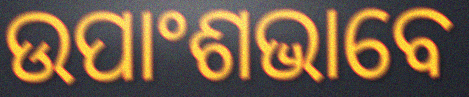
ଉପାଂଶଭାବେ